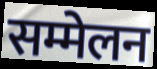
सम्‍मेलन